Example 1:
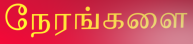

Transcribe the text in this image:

நேரங்களை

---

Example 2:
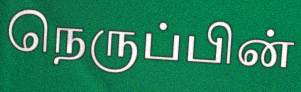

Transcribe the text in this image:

நெருப்பின்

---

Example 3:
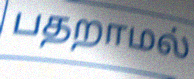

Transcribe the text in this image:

பதறாமல்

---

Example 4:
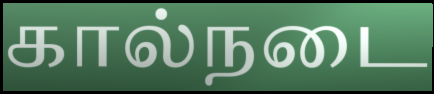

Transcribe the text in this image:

கால்நடை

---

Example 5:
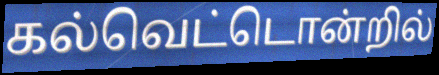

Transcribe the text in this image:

கல்வெட்டொன்றில்